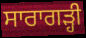
ਸਾਰਾਗੜ੍ਹੀ